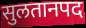
सुलतानपद